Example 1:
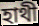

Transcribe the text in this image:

হাথী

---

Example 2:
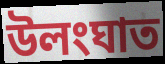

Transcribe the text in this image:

উলংঘাত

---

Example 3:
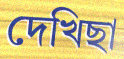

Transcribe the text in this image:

দেখিছা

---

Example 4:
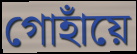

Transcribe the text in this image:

গোহাঁয়ে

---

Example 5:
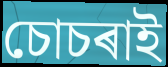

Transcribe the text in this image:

চোচৰাই